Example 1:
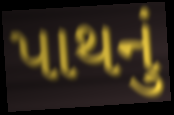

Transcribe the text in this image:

પાથનું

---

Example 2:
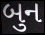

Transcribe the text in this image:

બુન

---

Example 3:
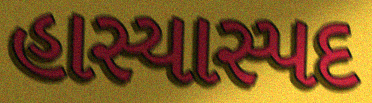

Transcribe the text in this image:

હાસ્યાસ્પદ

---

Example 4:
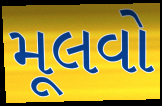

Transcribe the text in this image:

મૂલવો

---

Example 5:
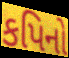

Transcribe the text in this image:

કપિનો